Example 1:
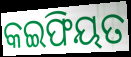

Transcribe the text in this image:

କଇଫିୟତ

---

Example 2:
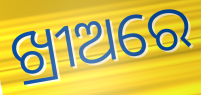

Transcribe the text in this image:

ଖ୍ରୀଅରେ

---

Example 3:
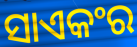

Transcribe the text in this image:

ସାଏକଂର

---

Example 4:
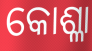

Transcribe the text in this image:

କୋଶ୍ଳା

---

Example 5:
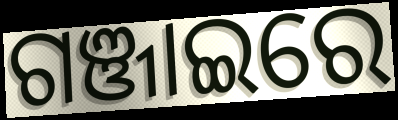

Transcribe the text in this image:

ଗଞ୍ଜାଇରେ